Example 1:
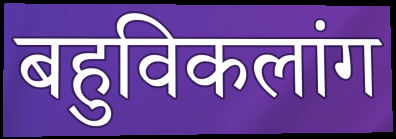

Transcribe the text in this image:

बहुविकलांग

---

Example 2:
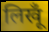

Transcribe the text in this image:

लिखूँ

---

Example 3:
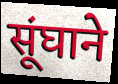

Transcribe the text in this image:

सूंघाने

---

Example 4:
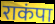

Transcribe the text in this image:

राकंपा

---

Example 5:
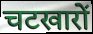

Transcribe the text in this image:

चटखारों